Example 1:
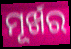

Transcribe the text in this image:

ମୂର୍ଖର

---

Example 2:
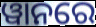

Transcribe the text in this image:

ୱାନରେ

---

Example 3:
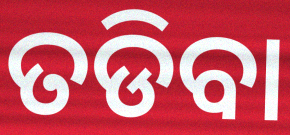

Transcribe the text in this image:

ତଡିବା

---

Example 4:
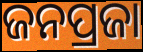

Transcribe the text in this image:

ଜନପ୍ରଜା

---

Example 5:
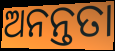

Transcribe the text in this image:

ଅନନ୍ତତା